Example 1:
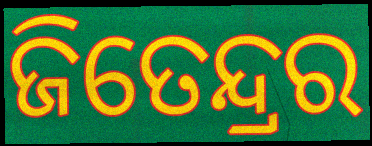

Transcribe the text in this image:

ଜିତେନ୍ଦ୍ରର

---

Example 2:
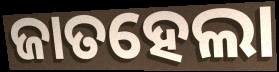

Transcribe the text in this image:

ଜାତହେଲା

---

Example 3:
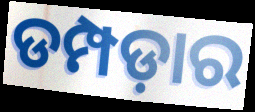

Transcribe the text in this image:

ଡମ୍ପଡ଼ାର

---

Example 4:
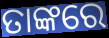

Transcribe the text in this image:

ତାଙ୍କରେ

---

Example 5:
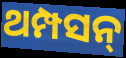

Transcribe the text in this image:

ଥମ୍ପସନ୍